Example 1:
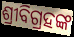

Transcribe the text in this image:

ଶ୍ରୀବିଗ୍ରହଙ୍କ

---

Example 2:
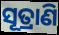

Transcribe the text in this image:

ସୂତ୍ରାଣି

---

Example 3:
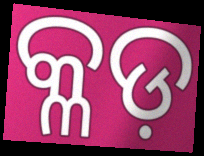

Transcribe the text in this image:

କ୍ଳଡ଼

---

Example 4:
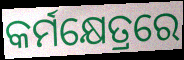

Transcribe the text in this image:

କର୍ମକ୍ଷେତ୍ରରେ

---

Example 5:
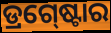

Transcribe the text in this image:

ଡ୍ରଗ୍‍ଷ୍ଟୋର